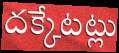
దక్కేటట్లు